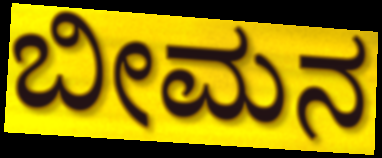
ಬೀಮನ